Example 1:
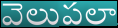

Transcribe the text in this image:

వెలుపలా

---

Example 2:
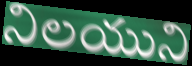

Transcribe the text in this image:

నిలయుని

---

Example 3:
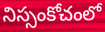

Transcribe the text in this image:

నిస్సంకోచంలో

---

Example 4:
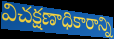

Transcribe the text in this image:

విచక్షణాధికారాన్ని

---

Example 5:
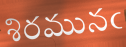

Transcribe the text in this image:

శిరమునఁ